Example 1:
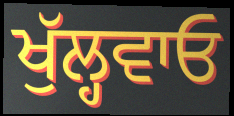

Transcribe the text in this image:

ਖੁੱਲ੍ਹਵਾਓ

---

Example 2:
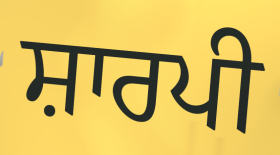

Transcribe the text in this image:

ਸ਼ਾਰਪੀ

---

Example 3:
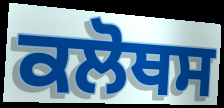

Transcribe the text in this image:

ਕਲੋਥਸ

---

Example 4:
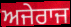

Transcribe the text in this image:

ਅਜੇਰਾਜ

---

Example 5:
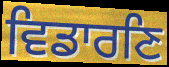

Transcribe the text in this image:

ਵਿਡਾਰਣਿ